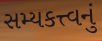
સમ્યકત્ત્વનું